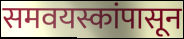
समवयस्कांपासून